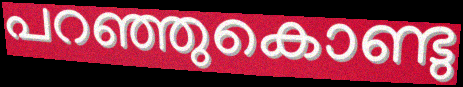
പറഞ്ഞുകൊണ്ടു